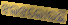
ଝଲଝଲୋଉଛି